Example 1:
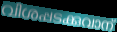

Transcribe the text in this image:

വിശപ്പടക്കുവാന്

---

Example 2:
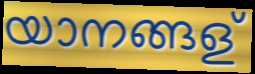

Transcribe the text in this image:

യാനങ്ങള്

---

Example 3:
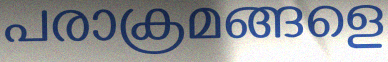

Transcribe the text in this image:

പരാക്രമങ്ങളെ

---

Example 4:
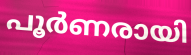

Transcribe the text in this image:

പൂർണരായി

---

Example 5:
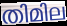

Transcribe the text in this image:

തിമില